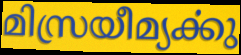
മിസ്രയീമ്യൎക്കു